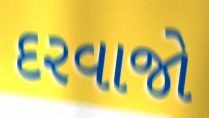
દરવાજો